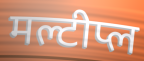
मल्टीप्ल